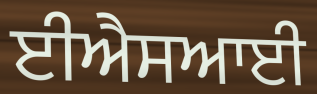
ਈਐਸਆਈ